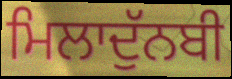
ਮਿਲਾਦੁੱਨਬੀ